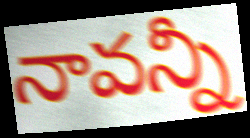
నావన్నీ